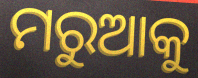
ମରୁଆକୁ